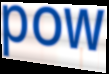
pow